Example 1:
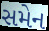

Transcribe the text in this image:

સમેન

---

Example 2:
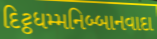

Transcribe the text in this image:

દિટ્ઠધમ્મનિબ્બાનવાદા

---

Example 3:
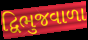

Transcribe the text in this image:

દ્વિભુજવાળા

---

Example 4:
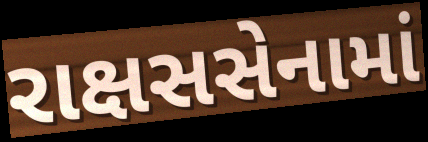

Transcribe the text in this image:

રાક્ષસસેનામાં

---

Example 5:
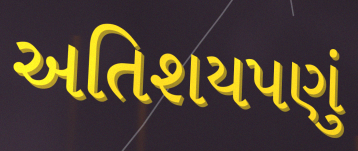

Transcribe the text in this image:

અતિશયપણું